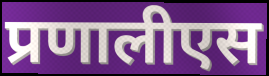
प्रणालीएस